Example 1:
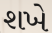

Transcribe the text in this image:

શખે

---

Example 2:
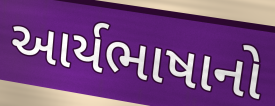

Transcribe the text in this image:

આર્યભાષાનો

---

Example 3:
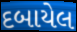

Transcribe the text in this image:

દબાયેલ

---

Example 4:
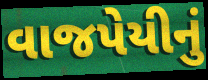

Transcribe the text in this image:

વાજપેયીનું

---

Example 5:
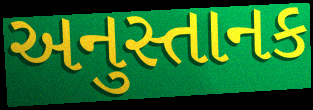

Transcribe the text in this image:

અનુસ્તાનક